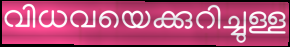
വിധവയെക്കുറിച്ചുള്ള